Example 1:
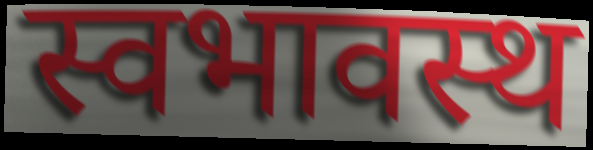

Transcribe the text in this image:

स्वभावस्थ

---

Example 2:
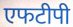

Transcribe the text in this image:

एफटीपी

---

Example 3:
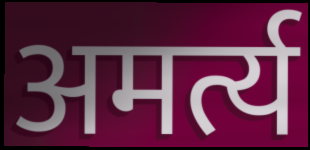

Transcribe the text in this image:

अमर्त्य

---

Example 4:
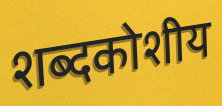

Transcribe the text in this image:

शब्दकोशीय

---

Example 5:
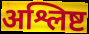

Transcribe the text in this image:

अश्लिष्ट